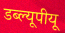
डब्ल्यूपीयू